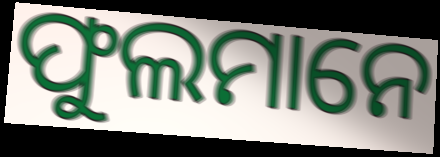
ଫୁଲମାନେ